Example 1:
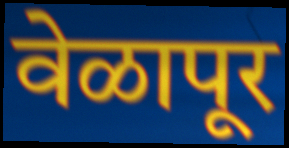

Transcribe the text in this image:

वेळापूर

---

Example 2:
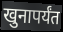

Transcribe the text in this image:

खुनापर्यंत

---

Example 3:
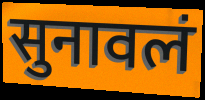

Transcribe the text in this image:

सुनावलं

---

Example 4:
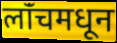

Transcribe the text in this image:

लॉंचमधून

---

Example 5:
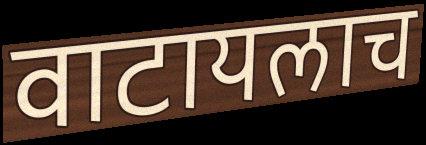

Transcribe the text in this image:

वाटायलाच